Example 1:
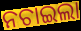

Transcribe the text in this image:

ନଚାଇଲା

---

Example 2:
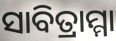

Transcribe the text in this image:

ସାବିତ୍ରାମ୍ମା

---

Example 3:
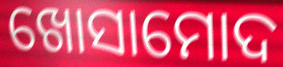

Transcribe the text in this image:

ଖୋସାମୋଦ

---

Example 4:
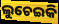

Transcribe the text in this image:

ଲୁଚେଇକି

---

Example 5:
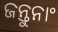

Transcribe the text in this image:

ଜନ୍ତୁନାଂ